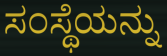
ಸಂಸ್ಥೆಯನ್ನು